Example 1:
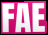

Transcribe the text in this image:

FAE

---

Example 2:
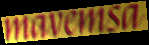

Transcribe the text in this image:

mavemsa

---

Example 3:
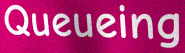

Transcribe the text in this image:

Queueing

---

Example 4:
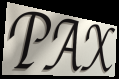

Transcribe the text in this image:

PAX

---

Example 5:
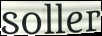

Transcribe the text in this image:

soller